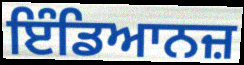
ਇੰਡਿਆਨਜ਼